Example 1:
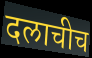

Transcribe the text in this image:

दलाचीच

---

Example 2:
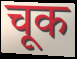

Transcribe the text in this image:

चूक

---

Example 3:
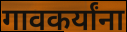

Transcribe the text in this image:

गावकर्यांना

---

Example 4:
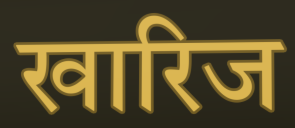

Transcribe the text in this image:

खारिज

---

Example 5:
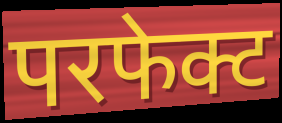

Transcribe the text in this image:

परफेक्ट